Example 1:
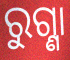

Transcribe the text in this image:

ରୁଗ୍ଣା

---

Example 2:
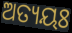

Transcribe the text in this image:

ଅତ୍ୟୟଃ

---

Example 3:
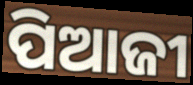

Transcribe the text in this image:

ପିଆଜୀ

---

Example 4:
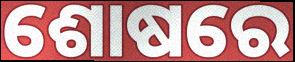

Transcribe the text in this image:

ଶୋଷରେ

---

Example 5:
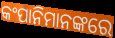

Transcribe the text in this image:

କଂପାନିମାନଙ୍କରେ